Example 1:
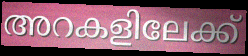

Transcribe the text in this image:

അറകളിലേക്ക്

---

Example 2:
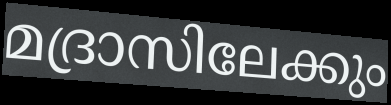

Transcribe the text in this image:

മദ്രാസിലേക്കും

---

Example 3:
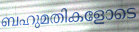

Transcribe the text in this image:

ബഹുമതികളോടെ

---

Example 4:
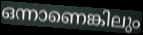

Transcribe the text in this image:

ഒന്നാണെങ്കിലും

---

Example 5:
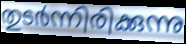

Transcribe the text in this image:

തുടർന്നിരിക്കുന്നു